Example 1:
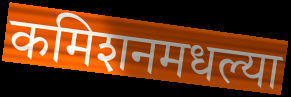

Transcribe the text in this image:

कमिशनमधल्या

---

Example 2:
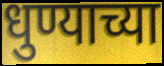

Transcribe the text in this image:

धुण्याच्या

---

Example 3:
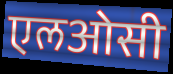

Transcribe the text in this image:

एलओसी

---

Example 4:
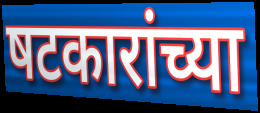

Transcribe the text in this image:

षटकारांच्या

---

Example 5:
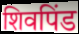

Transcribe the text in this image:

शिवपिंड